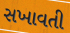
સખાવતી